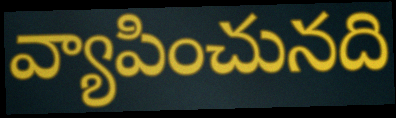
వ్యాపించునది